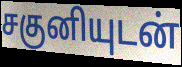
சகுனியுடன்